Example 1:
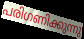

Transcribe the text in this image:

പരിഗണിക്കുന്നു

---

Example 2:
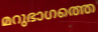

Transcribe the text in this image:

മറുഭാഗത്തെ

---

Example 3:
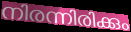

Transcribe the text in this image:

നിരന്നിരിക്കും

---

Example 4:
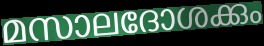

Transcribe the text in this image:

മസാലദോശക്കും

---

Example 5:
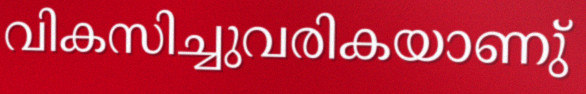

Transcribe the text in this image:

വികസിച്ചുവരികയാണു്